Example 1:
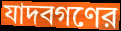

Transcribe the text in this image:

যাদবগণের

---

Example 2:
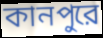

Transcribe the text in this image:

কানপুরে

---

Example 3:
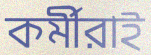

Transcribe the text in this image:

কর্মীরাই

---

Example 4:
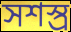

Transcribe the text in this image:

সশস্ত্র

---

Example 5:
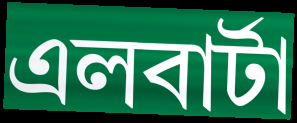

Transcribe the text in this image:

এলবার্টা